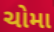
ચોમા